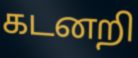
கடனறி